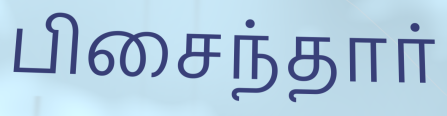
பிசைந்தார்